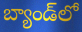
బ్యాండ్‌లో